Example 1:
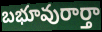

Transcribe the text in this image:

బభూవురార్తా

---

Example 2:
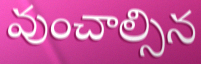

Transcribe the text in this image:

వుంచాల్సిన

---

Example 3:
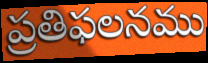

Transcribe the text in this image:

ప్రతిఫలనము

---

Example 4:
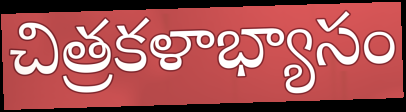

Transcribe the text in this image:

చిత్రకళాభ్యాసం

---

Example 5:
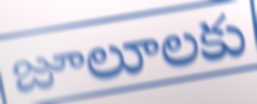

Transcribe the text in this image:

జూలూలకు